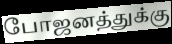
போஜனத்துக்கு